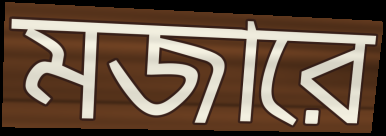
মজারে